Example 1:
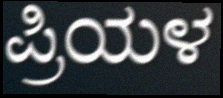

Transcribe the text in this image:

ಪ್ರಿಯಳ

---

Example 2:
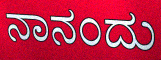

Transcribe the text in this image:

ನಾನಂದು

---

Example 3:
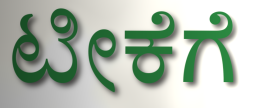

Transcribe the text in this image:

ಟೀಕೆಗೆ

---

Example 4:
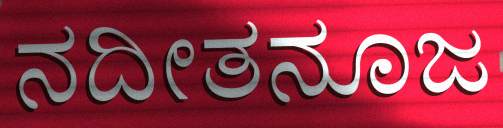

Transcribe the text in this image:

ನದೀತನೂಜ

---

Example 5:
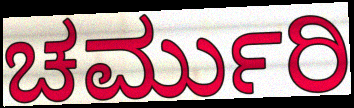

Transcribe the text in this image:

ಚರ್ಮುರಿ